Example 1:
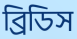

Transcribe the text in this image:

ব্রিডিস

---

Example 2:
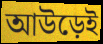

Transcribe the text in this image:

আউড়েই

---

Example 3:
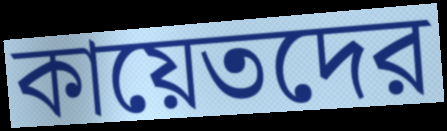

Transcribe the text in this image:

কায়েতদের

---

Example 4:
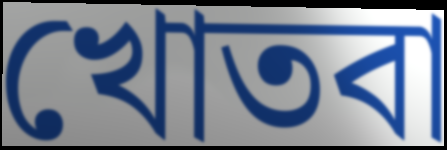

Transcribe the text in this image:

খোতবা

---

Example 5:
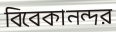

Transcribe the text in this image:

বিবেকানন্দর